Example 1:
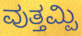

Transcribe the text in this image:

ವುತ್ತಮ್ಪಿ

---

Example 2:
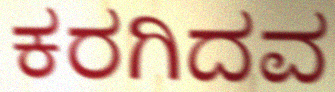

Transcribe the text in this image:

ಕರಗಿದವ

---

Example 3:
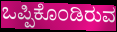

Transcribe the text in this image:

ಒಪ್ಪಿಕೊಂಡಿರುವ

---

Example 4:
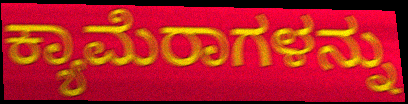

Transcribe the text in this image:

ಕ್ಯಾಮೆರಾಗಳನ್ನು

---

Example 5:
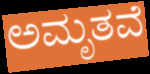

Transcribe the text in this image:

ಅಮೃತವೆ